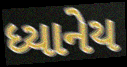
ધ્યાનેય